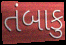
તંબાકુ